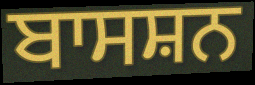
ਬਾਸਸ਼ਨ